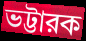
ভট্টারক